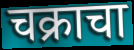
चक्राचा